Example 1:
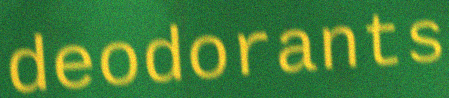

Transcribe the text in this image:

deodorants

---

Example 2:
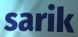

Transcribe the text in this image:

sarik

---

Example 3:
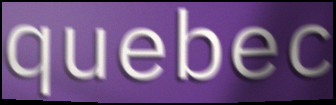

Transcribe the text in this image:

quebec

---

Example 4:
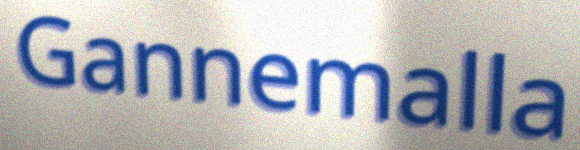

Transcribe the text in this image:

Gannemalla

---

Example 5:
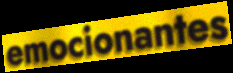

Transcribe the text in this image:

emocionantes